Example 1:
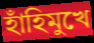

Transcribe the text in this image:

হাঁহিমুখে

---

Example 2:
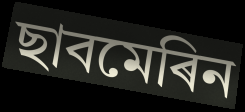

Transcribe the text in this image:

ছাবমেৰিন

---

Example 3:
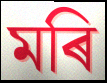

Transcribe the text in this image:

মৰি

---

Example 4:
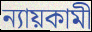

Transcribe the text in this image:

ন্যায়কামী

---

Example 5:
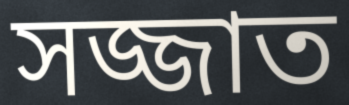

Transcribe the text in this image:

সজ্জাত